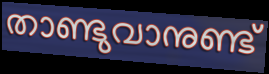
താണ്ടുവാനുണ്ട്